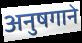
अनुषगाने